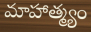
మాహాత్మ్యం